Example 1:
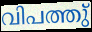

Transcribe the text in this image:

വിപത്തു്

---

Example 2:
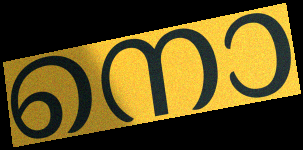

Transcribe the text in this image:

നൊ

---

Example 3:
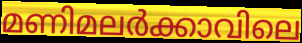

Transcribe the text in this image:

മണിമലർക്കാവിലെ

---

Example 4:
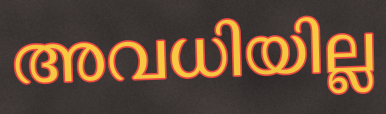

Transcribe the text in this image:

അവധിയില്ല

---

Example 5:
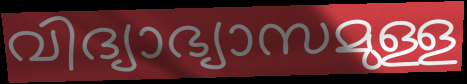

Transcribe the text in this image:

വിദ്യാഭ്യാസമുള്ള